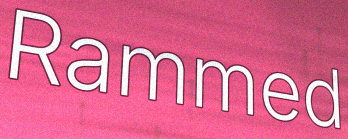
Rammed